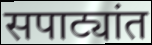
सपाट्यांत